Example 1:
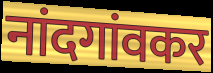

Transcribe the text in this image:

नांदगांवकर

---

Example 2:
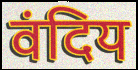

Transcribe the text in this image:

वंदिय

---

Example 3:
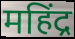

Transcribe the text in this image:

महिंद्र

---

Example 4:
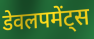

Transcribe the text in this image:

डेवलपमेंट्स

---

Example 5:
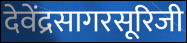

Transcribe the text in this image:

देवेंद्रसागरसूरिजी